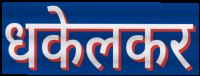
धकेलकर